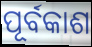
ପୂର୍ବକାଶ